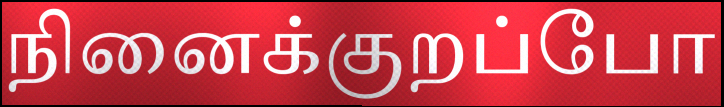
நினைக்குறப்போ